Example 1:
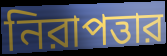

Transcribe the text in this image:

নিরাপত্তার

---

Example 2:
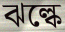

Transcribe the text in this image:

ঝল্কে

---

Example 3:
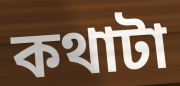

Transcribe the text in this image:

কথাটা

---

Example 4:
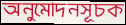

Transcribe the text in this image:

অনুমোদনসূচক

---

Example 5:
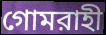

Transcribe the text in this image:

গোমরাহী